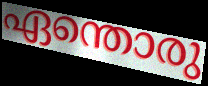
ഏന്തൊരു